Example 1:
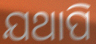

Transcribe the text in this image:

ଯଥାପି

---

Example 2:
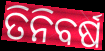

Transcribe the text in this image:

ତିନିବର୍ଷ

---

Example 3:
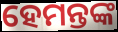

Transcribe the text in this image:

ହେମନ୍ତଙ୍କ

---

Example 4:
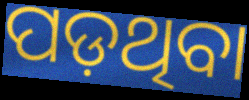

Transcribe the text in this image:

ପଡ଼ଥିବା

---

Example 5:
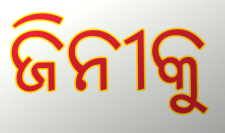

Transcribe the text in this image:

ଜିନୀକୁ